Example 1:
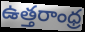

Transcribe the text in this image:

ఉత్తరాంధ్ర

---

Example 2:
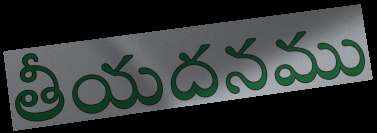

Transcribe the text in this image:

తీయదనము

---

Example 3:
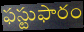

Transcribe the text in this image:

ఫస్టుఫారం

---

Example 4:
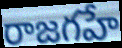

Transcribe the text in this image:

రాజగహే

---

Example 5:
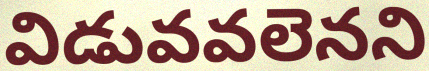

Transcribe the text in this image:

విడువవలెనని